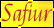
Safiur